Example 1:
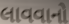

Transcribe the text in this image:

લાવવાનો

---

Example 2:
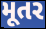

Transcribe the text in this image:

મૂતર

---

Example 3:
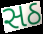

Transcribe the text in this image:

સઠ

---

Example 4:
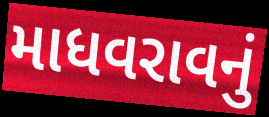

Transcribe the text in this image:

માધવરાવનું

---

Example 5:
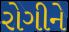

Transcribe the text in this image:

રોગીને